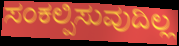
ಸಂಕಲ್ಪಿಸುವುದಿಲ್ಲ